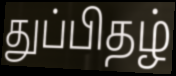
துப்பிதழ்